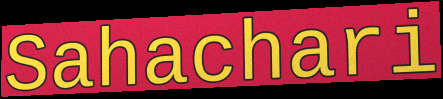
Sahachari